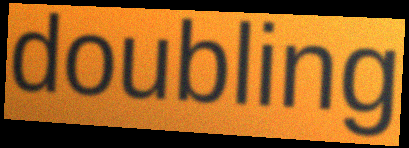
doubling